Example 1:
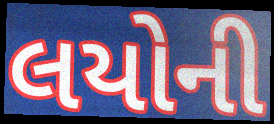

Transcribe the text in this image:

લયોની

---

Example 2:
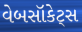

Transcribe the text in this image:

વેબસૉકેટ્સ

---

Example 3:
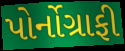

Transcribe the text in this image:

પોર્નોગ્રાફી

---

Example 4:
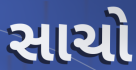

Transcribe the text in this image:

સાચો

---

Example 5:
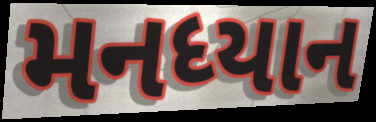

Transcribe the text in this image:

મનધ્યાન